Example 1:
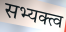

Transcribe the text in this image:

सभ्यक्त्व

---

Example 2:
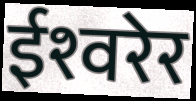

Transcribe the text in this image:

ईश्वरेर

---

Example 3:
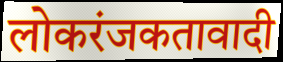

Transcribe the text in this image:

लोकरंजकतावादी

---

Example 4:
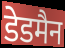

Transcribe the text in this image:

डेडमैन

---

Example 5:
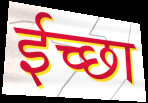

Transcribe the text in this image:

ईच्छा